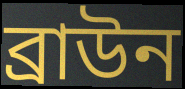
ব্ৰাউন